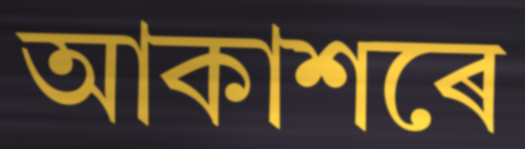
আকাশৰে